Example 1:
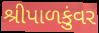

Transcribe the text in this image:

શ્રીપાળકુંવર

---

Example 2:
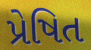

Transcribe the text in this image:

પ્રેષિત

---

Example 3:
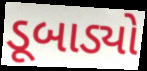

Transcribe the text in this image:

ડૂબાડ્યો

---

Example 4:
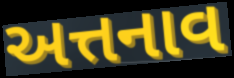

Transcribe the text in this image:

અત્તનાવ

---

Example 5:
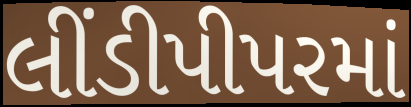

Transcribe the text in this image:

લીંડીપીપરમાં